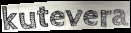
kutevera